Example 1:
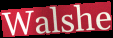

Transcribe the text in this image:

Walshe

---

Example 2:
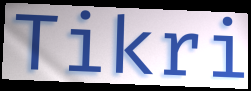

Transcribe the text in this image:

Tikri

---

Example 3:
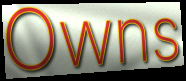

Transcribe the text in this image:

Owns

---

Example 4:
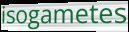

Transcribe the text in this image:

isogametes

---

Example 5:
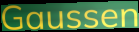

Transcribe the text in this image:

Gaussen